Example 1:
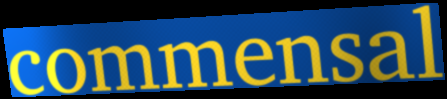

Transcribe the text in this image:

commensal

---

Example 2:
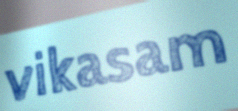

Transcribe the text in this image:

vikasam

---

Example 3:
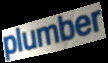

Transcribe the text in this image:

plumber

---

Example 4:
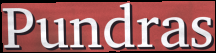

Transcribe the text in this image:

Pundras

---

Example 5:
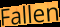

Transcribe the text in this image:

Fallen